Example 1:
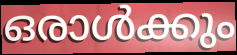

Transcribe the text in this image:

ഒരാൾക്കും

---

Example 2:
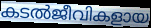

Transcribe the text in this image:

കടൽജീവികളായ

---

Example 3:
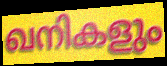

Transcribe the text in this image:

ഖനികളും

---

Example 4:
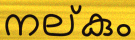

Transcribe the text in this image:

നല്കും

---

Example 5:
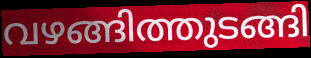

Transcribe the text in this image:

വഴങ്ങിത്തുടങ്ങി